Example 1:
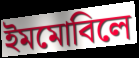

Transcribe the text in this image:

ইমমোবিলে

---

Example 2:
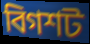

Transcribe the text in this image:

বিগশট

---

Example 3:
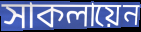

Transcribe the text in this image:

সাকলায়েন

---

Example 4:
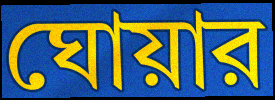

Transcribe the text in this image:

ঘোয়ার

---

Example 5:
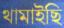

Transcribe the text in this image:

থামাইছি